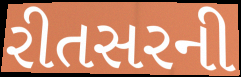
રીતસરની